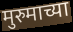
मुरुमाच्या